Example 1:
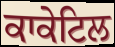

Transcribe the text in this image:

ਕਾਕੇਟਿਲ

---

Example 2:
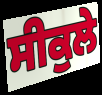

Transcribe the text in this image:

ਸੀਕੁਲੇ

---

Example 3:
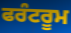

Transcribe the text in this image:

ਫਰੰਟਰੂਮ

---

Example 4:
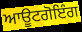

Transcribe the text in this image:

ਆਊਟਗੋਇੰਗ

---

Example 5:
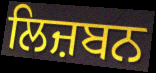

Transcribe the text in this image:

ਲਿਜ਼ਬਨ